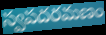
స్వపదరమణం